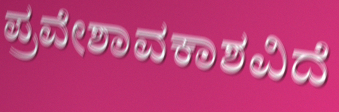
ಪ್ರವೇಶಾವಕಾಶವಿದೆ